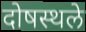
दोषस्थले